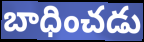
బాధించడు